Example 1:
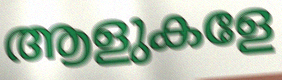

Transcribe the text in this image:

ആളുകളേ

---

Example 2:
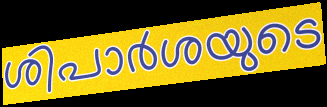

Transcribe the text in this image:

ശിപാർശയുടെ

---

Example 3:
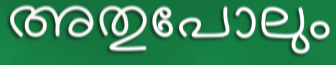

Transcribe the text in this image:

അതുപോലും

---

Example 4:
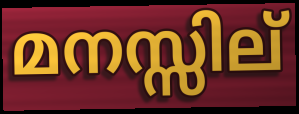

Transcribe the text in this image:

മനസ്സില്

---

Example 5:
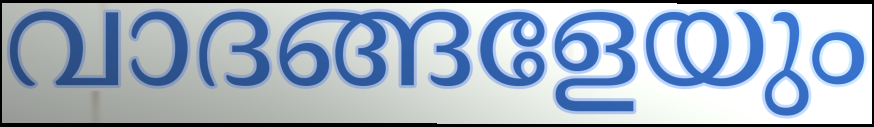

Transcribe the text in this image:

വാദങ്ങളേയും